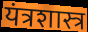
यंत्रशास्त्र